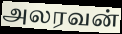
அலரவன்